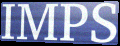
IMPS